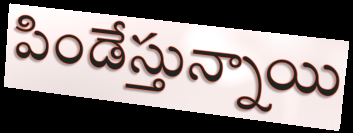
పిండేస్తున్నాయి